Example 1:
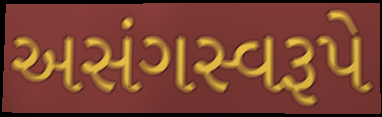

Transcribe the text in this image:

અસંગસ્વરૂપે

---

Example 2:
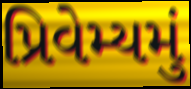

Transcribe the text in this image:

પ્રિવેમ્યમું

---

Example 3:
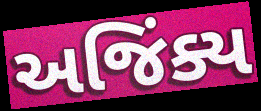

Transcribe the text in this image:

અજિંક્ય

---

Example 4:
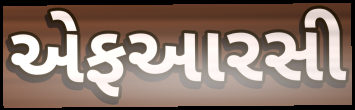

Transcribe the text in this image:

એફઆરસી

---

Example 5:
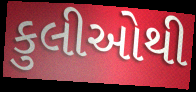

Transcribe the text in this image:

કુલીઓથી